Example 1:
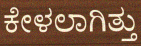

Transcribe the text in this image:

ಕೇಳಲಾಗಿತ್ತು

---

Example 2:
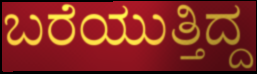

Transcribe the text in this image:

ಬರೆಯುತ್ತಿದ್ದ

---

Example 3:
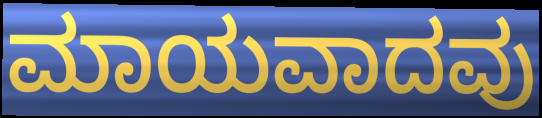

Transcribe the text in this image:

ಮಾಯವಾದವು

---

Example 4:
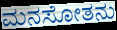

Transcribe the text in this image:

ಮನಸೋತನು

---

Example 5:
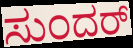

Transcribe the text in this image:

ಸುಂದರ್